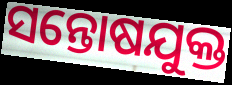
ସନ୍ତୋଷଯୁକ୍ତ